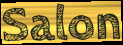
Salon